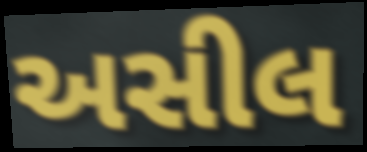
અસીલ